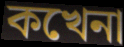
কখেনা